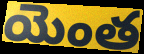
యెంత